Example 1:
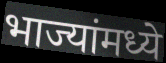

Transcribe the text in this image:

भाज्यांमध्ये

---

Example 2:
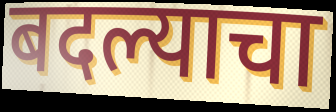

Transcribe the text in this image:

बदल्याचा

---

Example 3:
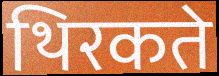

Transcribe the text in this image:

थिरकते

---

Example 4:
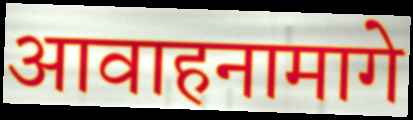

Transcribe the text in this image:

आवाहनामागे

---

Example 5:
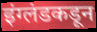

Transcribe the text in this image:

इंग्लंडकडून